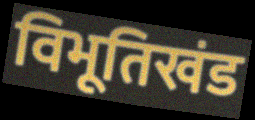
विभूतिखंड